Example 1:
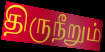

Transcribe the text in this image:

திருநீறும்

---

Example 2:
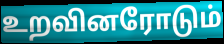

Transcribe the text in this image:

உறவினரோடும்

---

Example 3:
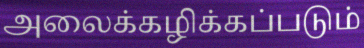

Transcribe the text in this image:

அலைக்கழிக்கப்படும்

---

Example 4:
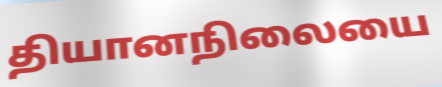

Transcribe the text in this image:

தியானநிலையை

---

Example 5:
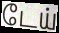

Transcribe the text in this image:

டேய்